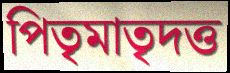
পিতৃমাতৃদত্ত